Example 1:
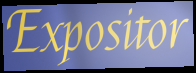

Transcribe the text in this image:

Expositor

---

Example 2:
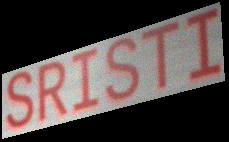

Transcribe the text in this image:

SRISTI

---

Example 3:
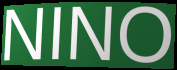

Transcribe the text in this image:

NINO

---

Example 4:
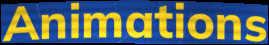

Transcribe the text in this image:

Animations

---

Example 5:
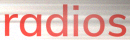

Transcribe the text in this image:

radios